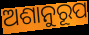
ଅଶାନୁରୂପ